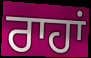
ਰਾਹਾਂ